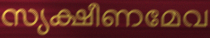
സ്യക്ഷീണമേവ